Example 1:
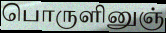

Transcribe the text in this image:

பொருளினுஞ்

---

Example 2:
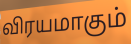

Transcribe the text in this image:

விரயமாகும்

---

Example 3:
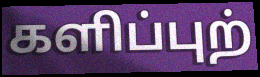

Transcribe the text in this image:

களிப்புற்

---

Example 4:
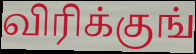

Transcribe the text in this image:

விரிக்குங்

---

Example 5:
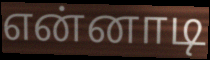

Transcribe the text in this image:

என்னாடி